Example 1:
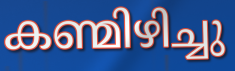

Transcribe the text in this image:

കണ്മിഴിച്ചു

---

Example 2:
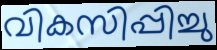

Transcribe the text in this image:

വികസിപ്പിച്ചു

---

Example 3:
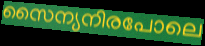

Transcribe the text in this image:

സൈന്യനിരപോലെ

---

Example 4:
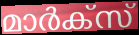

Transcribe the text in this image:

മാർക്‌സ്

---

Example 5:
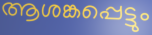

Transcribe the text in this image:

ആശങ്കപ്പെട്ടും